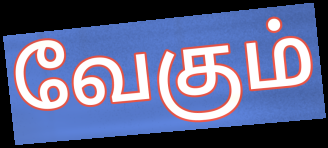
வேகும்